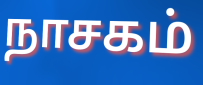
நாசகம்